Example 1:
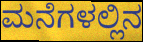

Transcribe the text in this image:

ಮನೆಗಳಲ್ಲಿನ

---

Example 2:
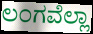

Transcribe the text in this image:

ಲಂಗವೆಲ್ಲಾ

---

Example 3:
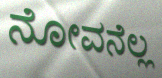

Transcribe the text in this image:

ನೋವನೆಲ್ಲ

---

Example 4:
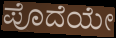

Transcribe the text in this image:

ಪೊದೆಯೇ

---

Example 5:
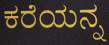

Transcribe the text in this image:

ಕರೆಯನ್ನ